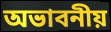
অভাবনীয়